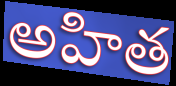
అహిత